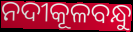
ନଦୀକୂଳବନ୍ଧୁ